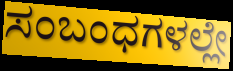
ಸಂಬಂಧಗಳಲ್ಲೇ